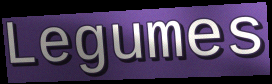
Legumes